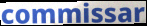
commissar